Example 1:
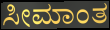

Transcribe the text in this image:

ಸೀಮಾಂತ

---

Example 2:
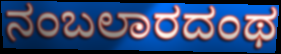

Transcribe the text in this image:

ನಂಬಲಾರದಂಥ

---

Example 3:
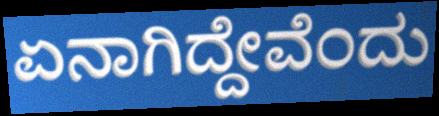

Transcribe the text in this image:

ಏನಾಗಿದ್ದೇವೆಂದು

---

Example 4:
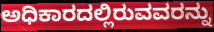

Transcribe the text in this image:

ಅಧಿಕಾರದಲ್ಲಿರುವವರನ್ನು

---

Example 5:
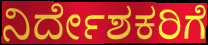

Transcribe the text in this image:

ನಿರ್ದೇಶಕರಿಗೆ